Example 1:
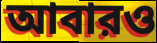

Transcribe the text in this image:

আবারও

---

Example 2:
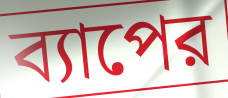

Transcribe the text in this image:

ব্যাপের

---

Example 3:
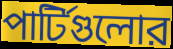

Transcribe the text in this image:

পার্টিগুলোর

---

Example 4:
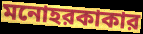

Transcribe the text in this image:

মনোহরকাকার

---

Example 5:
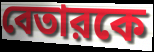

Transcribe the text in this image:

বেতারকে